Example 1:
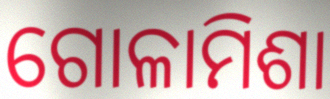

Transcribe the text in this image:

ଗୋଳାମିଶା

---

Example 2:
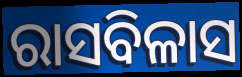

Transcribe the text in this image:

ରାସବିଳାସ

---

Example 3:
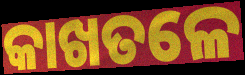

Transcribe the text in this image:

କାଖତଳେ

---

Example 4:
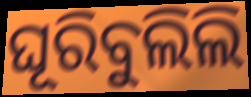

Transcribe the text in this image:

ଘୂରିବୁଲିଲି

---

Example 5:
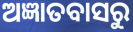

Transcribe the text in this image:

ଅଜ୍ଞାତବାସରୁ